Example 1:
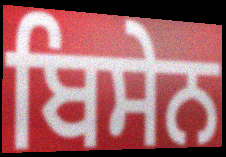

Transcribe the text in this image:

ਬਿਸੇਨ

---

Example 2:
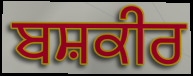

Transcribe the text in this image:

ਬਸ਼ਕੀਰ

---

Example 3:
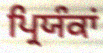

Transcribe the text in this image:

ਪ੍ਰਿਯੰਕਾਂ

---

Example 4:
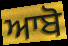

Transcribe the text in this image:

ਆਬੋ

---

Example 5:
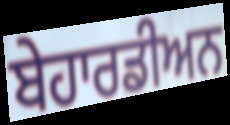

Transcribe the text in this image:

ਬੇਹਾਰਡੀਅਨ